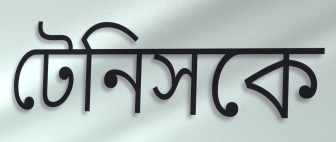
টেনিসকে